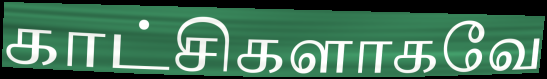
காட்சிகளாகவே